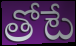
తోటే